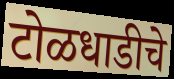
टोळधाडीचे